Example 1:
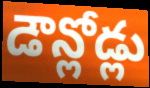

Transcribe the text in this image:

డౌన్లోడ్లు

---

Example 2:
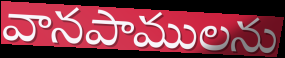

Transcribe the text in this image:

వానపాములను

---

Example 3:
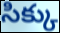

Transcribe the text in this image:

సిక్కు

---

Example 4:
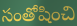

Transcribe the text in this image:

సంతోషించి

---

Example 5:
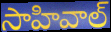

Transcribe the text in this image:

సాహివాల్